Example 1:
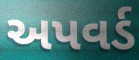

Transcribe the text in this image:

અપવર્ડ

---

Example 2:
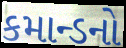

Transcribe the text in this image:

કમાન્ડનો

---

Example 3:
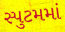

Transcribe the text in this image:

સ્પુટમમાં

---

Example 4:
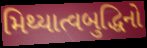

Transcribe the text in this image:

મિથ્યાત્વબુદ્ધિનો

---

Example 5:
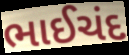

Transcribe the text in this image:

ભાઈચંદ